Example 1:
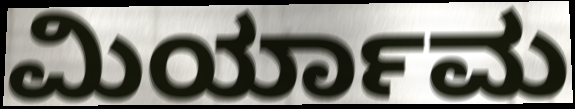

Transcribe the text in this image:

ಮಿರ್ಯಾಮ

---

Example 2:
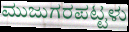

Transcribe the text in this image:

ಮುಜುಗರಪಟ್ಟಳು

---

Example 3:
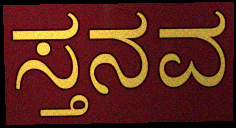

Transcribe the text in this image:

ಸ್ತನವ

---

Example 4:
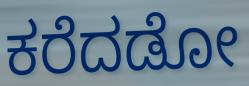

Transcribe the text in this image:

ಕರೆದಡೋ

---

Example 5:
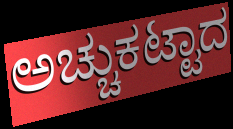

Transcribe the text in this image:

ಅಚ್ಚುಕಟ್ಟಾದ